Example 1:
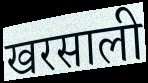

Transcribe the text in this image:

खरसाली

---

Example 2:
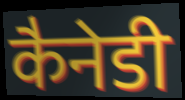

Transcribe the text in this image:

कैनेडी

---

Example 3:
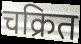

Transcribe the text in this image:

चक्रित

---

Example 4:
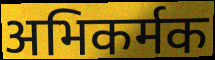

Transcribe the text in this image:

अभिकर्मक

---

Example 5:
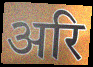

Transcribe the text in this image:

अरि